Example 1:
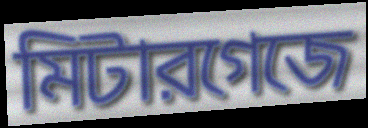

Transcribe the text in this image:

মিটারগেজে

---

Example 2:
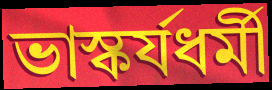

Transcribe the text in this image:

ভাস্কর্যধর্মী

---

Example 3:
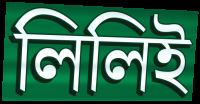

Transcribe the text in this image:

লিলিই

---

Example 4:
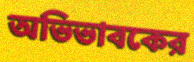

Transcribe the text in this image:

অভিভাবকের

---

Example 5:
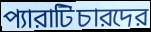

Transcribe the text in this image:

প্যারাটিচারদের